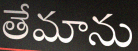
తేమాను